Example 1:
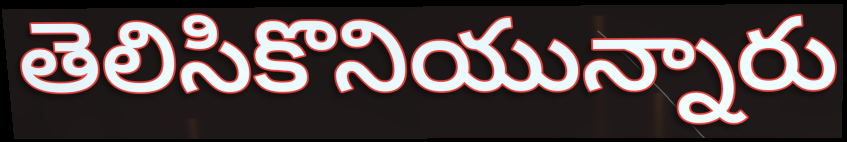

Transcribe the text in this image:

తెలిసికొనియున్నారు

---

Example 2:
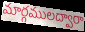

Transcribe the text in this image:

మార్గములద్వారా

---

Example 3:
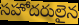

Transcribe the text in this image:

సహోదరులైన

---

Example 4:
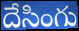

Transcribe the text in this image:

దేసింగు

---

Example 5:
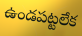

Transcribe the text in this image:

ఉండపట్టలేక